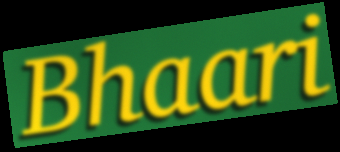
Bhaari